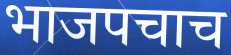
भाजपचाच